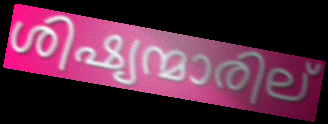
ശിഷ്യന്മാരില്